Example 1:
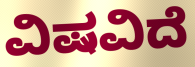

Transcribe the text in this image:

ವಿಷವಿದೆ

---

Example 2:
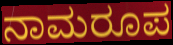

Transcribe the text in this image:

ನಾಮರೂಪ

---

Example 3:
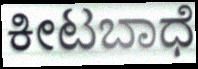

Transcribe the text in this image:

ಕೀಟಬಾಧೆ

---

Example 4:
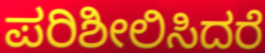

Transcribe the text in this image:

ಪರಿಶೀಲಿಸಿದರೆ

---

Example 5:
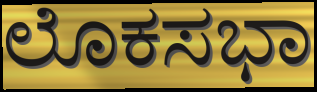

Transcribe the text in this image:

ಲೊಕಸಭಾ